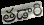
తడారి